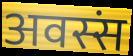
अवस्सं